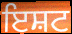
ਇਸ਼ਟ